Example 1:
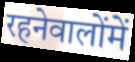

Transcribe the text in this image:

रहनेवालोंमें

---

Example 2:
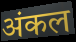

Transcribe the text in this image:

अंकल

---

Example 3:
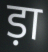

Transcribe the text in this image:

ड़ा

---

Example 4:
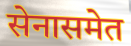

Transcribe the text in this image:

सेनासमेत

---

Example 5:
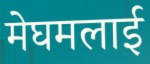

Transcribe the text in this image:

मेघमलाई